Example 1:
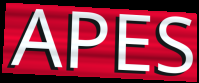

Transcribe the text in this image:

APES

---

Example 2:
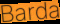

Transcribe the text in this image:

Barda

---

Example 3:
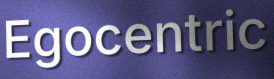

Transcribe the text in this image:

Egocentric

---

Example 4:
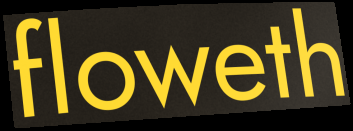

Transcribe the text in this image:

floweth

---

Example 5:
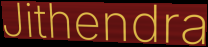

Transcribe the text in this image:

Jithendra